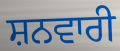
ਸ਼ਨਵਾਰੀ